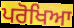
ਪਰੋਖਿਆ